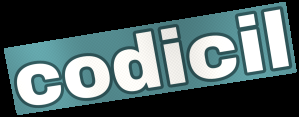
codicil